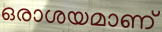
ഒരാശയമാണ്